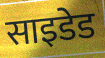
साइडेड